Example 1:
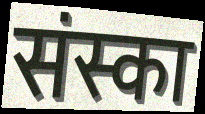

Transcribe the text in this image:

संस्का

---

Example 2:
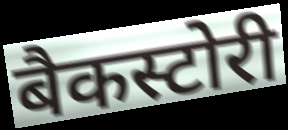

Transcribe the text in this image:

बैकस्टोरी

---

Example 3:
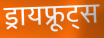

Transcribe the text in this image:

ड्रायफ्रूट्स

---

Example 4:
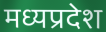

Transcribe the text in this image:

मध्‍यप्रदेश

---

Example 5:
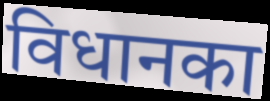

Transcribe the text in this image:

विधानका